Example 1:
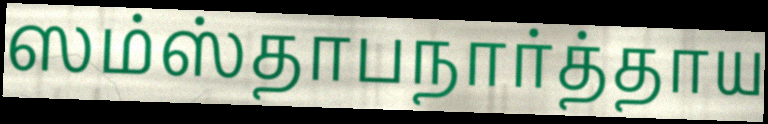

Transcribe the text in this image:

ஸம்ஸ்தாபநார்த்தாய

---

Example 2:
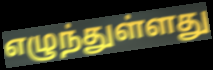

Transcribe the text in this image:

எழுந்துள்ளது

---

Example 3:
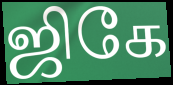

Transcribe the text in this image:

ஜிகே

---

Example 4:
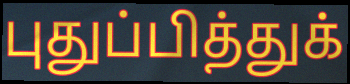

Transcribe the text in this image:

புதுப்பித்துக்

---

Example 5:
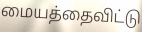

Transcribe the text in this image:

மையத்தைவிட்டு